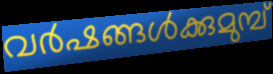
വർഷങ്ങൾക്കുമുമ്പ്